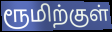
ரூமிற்குள்